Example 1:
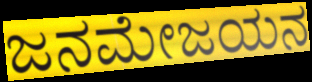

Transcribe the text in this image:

ಜನಮೇಜಯನ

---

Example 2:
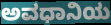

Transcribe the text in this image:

ಅವಧಾನಿಯ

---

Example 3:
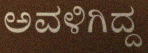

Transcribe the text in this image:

ಅವಳಿಗಿದ್ದ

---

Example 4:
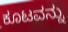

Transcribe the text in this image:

ಕೂಟವನ್ನು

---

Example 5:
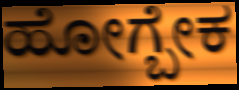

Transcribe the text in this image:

ಹೋಗ್ಬೇಕ